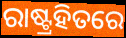
ରାଷ୍ଟ୍ରହିତରେ